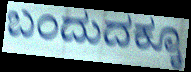
ಬಂದುದಕ್ಕೂ